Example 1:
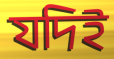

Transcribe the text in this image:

যদিই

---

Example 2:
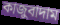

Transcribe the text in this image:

কাজুবাদাম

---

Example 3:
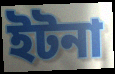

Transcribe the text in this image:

ইটনা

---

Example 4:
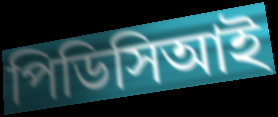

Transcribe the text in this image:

পিডিসিআই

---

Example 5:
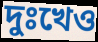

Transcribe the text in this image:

দুঃখেও